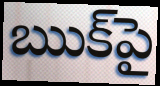
ఋక్‌పై